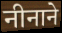
नीनाने